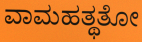
ವಾಮಹತ್ಥತೋ